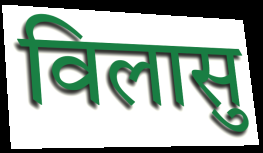
विलासु